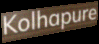
Kolhapure